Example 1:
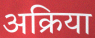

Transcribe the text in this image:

अक्रिया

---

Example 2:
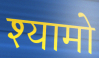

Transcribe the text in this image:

श्यामो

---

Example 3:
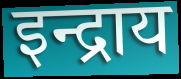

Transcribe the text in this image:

इन्द्राय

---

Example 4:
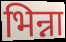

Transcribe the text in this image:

भिन्ना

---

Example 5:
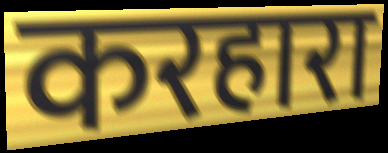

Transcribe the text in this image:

करहारा